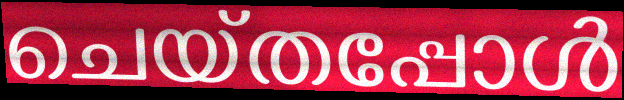
ചെയ്‌തപ്പോൾ